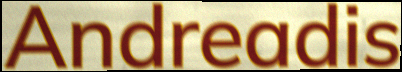
Andreadis